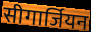
सीगार्जियन